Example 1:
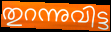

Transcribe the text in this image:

തുറന്നുവിട്ട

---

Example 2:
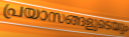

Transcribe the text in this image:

പ്രയാസങ്ങളുടെയും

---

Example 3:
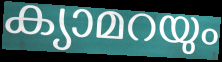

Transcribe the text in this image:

ക്യാമറയും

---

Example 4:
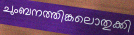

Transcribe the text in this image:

ചുംബനത്തിങ്കലൊതുക്കി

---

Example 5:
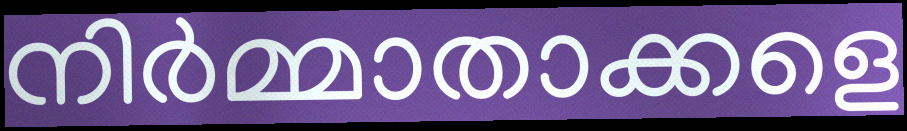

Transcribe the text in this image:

നിർമ്മാതാക്കളെ